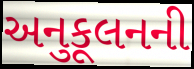
અનુકૂલનની